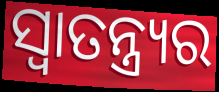
ସ୍ଵାତନ୍ତ୍ର୍ୟର